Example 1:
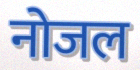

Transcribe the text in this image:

नोजल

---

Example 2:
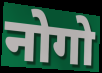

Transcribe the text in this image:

नोगो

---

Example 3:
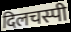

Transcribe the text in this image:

दिलचस्‍पी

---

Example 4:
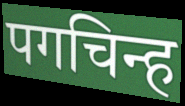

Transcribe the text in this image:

पगचिन्ह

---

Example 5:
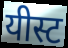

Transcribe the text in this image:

यीस्ट